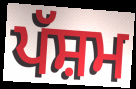
ਪੱਸ਼ਮ